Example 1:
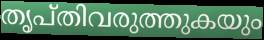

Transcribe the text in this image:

തൃപ്തിവരുത്തുകയും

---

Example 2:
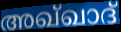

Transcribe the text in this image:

അഖ്ഖാദ്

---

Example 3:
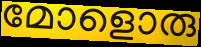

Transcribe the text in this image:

മോളൊരു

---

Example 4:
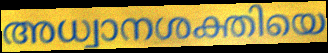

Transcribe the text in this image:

അധ്വാനശക്തിയെ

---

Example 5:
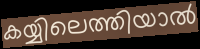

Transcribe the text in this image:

കയ്യിലെത്തിയാൽ